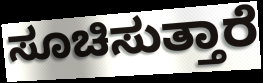
ಸೂಚಿಸುತ್ತಾರೆ